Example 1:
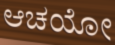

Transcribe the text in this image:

ಆಚಯೋ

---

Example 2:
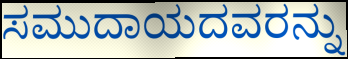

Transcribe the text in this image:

ಸಮುದಾಯದವರನ್ನು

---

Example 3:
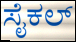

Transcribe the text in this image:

ಸೈಕಲ್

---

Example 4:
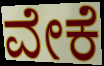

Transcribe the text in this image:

ವೇಕೆ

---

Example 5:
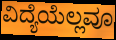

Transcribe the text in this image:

ವಿದ್ಯೆಯೆಲ್ಲವೂ